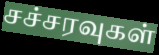
சச்சரவுகள்